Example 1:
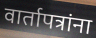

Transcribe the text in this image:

वार्तापत्रांना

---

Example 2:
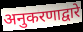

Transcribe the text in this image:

अनुकरणाद्वारे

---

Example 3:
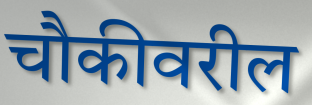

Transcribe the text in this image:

चौकीवरील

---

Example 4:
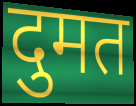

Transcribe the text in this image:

दुमत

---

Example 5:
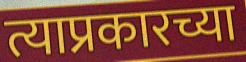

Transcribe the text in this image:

त्याप्रकारच्या